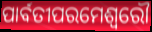
ପାର୍ବତୀପରମେଶ୍ଵରୌ